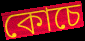
কোচে